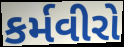
કર્મવીરો